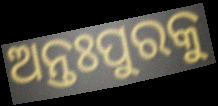
ଅନ୍ତଃପୁରକୁ